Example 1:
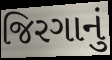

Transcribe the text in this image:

જિરગાનું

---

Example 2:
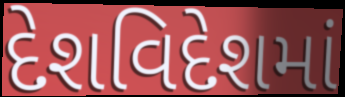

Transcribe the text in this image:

દેશવિદેશમાં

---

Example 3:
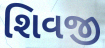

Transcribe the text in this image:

શિવજી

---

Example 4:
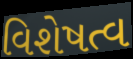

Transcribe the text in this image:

વિશેષત્વ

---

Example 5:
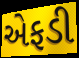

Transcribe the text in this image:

એફડી